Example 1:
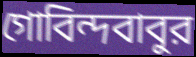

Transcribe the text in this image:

গোবিন্দবাবুর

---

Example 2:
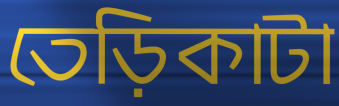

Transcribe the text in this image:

তেড়িকাটা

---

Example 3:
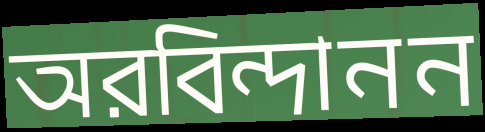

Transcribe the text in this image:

অরবিন্দানন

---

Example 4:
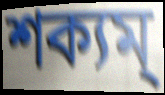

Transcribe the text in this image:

শক্যম্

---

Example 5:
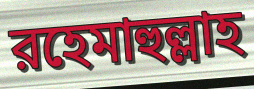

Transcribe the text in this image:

রহেমাহুল্লাহ